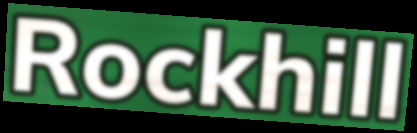
Rockhill